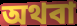
অথবা